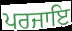
ਪਰਜਾਇ